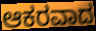
ಆಕರವಾದ